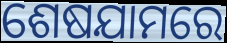
ଶେଷଯାମରେ